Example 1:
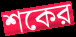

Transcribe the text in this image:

শকের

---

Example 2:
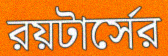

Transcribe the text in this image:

রয়টার্সের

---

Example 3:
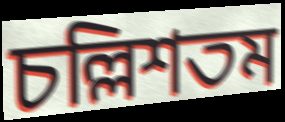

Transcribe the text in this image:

চল্লিশতম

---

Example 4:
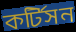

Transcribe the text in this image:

কর্টিসন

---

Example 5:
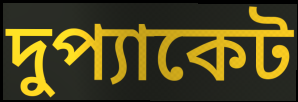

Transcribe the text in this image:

দুপ্যাকেট